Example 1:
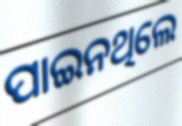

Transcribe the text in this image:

ପାଇନଥିଲେ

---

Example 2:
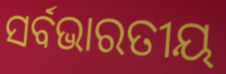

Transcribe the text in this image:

ସର୍ବଭାରତୀୟ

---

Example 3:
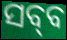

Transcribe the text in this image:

ସବ୍‌ବ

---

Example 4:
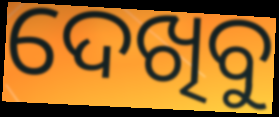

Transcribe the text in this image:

ଦେଖିବୁ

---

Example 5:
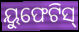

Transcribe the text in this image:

ୟୁଫେଟିସ୍